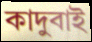
কাদুবাই